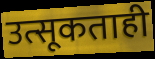
उत्सूकताही